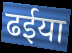
ढईया